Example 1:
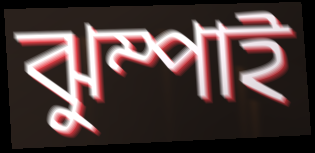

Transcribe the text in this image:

ঝুম্পাই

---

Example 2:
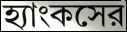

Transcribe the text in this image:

হ্যাংকসের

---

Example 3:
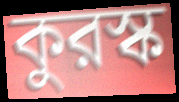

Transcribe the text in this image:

কুরস্ক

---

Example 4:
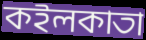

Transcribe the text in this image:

কইলকাতা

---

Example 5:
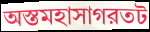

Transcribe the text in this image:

অস্তমহাসাগরতট